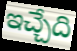
ఇచ్చేది